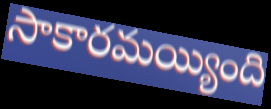
సాకారమయ్యింది